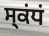
ਸ੍ਕਂਧਂ